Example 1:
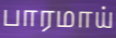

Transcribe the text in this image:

பாரமாய்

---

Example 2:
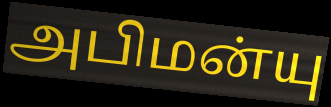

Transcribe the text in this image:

அபிமன்யு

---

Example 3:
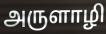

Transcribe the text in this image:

அருளாழி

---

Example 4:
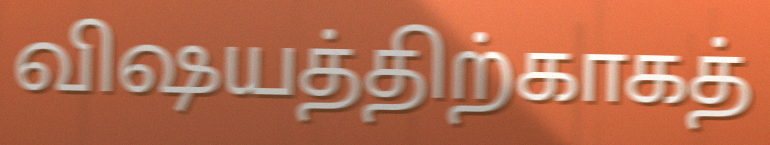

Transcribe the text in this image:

விஷயத்திற்காகத்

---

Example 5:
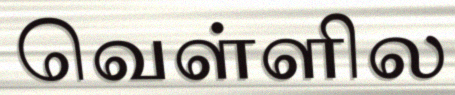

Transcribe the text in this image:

வெள்ளில